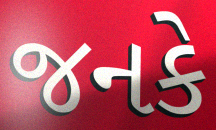
જનકે